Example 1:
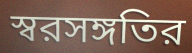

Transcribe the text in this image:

স্বরসঙ্গতির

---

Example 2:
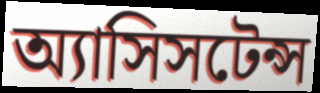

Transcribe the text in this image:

অ্যাসিসটেন্স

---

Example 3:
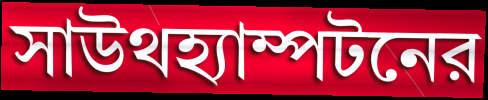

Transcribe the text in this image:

সাউথহ্যাম্পটনের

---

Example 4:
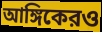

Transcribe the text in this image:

আঙ্গিকেরও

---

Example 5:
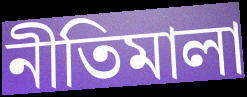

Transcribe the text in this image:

নীতিমালা